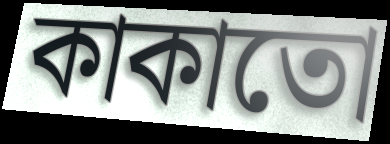
কাকাতো